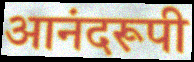
आनंदरूपी